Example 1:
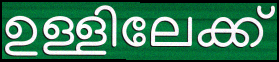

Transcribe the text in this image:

ഉള്ളിലേക്ക്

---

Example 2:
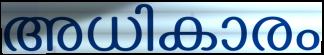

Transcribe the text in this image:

അധികാരം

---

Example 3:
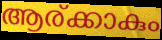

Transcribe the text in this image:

ആര്ക്കാകും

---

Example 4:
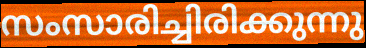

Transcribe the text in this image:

സംസാരിച്ചിരിക്കുന്നു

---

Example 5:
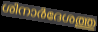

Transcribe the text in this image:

ശിനാർദേശത്തു